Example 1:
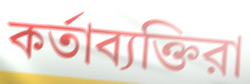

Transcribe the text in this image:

কর্তাব্যক্তিরা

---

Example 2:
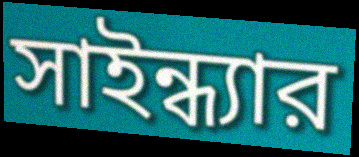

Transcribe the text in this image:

সাইন্ধ্যার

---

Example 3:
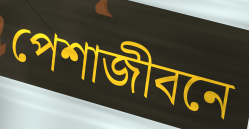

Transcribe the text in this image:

পেশাজীবনে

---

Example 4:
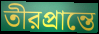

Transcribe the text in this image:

তীরপ্রান্তে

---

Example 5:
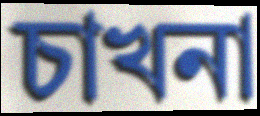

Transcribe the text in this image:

চাখনা